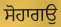
ਸੋਹਾਗਉ